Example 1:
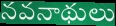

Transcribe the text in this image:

నవనాథులు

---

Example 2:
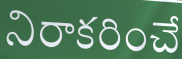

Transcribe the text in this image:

నిరాకరించే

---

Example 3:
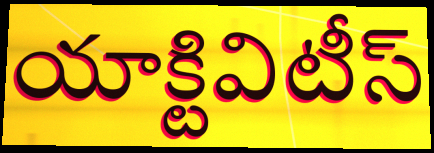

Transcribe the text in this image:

యాక్టివిటీస్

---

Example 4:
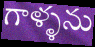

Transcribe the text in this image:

గాళ్ళను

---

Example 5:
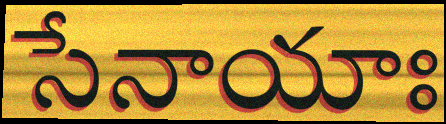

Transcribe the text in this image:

సేనాయాః